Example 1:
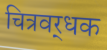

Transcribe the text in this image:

चित्रवर्धक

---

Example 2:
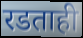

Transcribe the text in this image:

रडताही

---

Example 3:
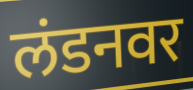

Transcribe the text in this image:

लंडनवर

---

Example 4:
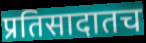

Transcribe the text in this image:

प्रतिसादातच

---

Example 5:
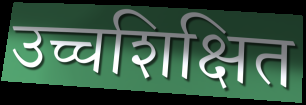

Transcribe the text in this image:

उच्चशिक्षित